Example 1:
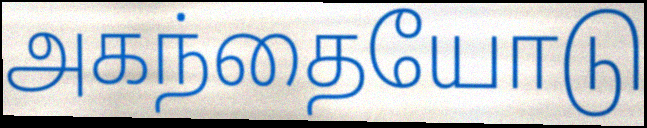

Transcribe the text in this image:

அகந்தையோடு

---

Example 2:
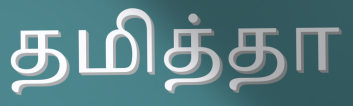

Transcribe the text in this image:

தமித்தா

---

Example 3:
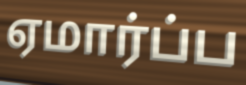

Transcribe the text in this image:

ஏமார்ப்ப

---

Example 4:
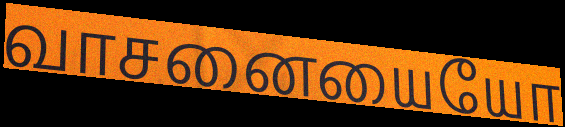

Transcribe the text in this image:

வாசனையையோ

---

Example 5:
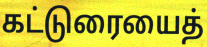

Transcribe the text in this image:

கட்டுரையைத்